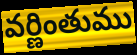
వర్ణింతుము